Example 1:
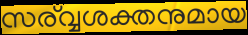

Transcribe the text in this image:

സര്വ്വശക്തനുമായ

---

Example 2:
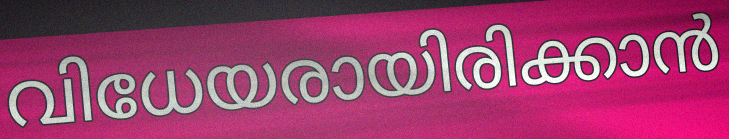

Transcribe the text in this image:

വിധേയരായിരിക്കാൻ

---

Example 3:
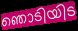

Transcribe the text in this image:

ഞൊടിയിട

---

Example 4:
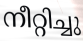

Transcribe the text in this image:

നീറ്റിച്ചു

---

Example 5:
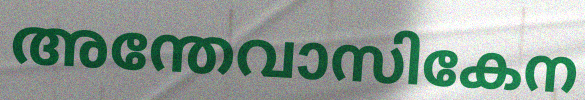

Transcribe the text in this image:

അന്തേവാസികേന